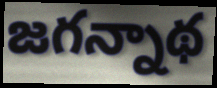
జగన్నాథ